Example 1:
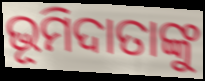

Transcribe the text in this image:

ଭୂମିଦାତାଙ୍କୁ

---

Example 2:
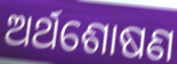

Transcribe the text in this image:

ଅର୍ଥଶୋଷଣ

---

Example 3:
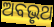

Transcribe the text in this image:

ଅବଭୃଥ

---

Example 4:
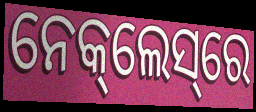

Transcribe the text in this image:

ନେକ୍‌ଲେସ୍‌ରେ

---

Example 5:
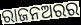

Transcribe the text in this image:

ରାଜନଅରର